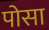
पोसा